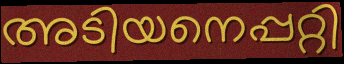
അടിയനെപ്പറ്റി